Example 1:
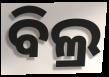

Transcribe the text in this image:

ବିଲ୍ର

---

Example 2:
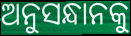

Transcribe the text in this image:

ଅନୁସନ୍ଧାନକୁ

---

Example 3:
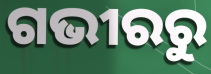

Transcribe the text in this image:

ଗଭୀରରୁ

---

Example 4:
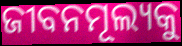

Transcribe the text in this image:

ଜୀବନମୂଲ୍ୟକୁ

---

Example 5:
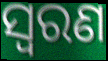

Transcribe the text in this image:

ସ୍ୱରଣ